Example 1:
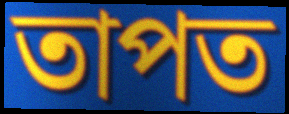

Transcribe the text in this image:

তাপত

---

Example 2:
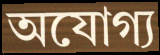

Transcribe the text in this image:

অযোগ্য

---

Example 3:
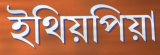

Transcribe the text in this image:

ইথিয়পিয়া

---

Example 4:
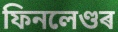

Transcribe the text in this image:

ফিনলেণ্ডৰ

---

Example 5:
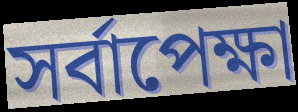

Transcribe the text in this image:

সৰ্বাপেক্ষা